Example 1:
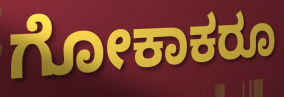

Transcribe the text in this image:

ಗೋಕಾಕರೂ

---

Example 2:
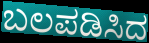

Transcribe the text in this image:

ಬಲಪಡಿಸಿದ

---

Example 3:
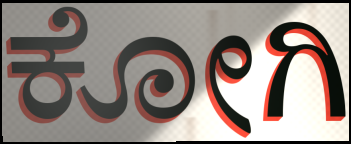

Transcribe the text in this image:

ಕೋಗಿ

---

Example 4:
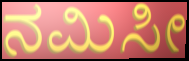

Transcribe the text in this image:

ನಮಿಸೀ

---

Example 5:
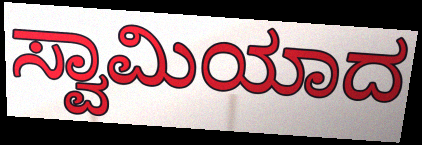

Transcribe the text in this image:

ಸ್ವಾಮಿಯಾದ